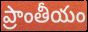
ప్రాంతీయం